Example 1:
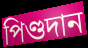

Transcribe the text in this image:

পিণ্ডদান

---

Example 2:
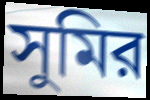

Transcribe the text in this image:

সুমির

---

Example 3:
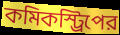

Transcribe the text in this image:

কমিকস্ট্রিপের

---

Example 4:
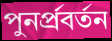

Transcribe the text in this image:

পুনর্প্রবর্তন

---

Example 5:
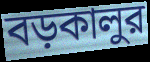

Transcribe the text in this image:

বড়কালুর